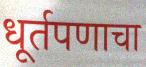
धूर्तपणाचा